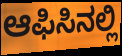
ಆಫಿಸಿನಲ್ಲಿ